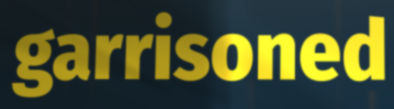
garrisoned